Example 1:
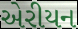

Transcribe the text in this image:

એરીયન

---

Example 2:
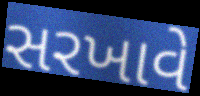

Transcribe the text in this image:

સરખાવે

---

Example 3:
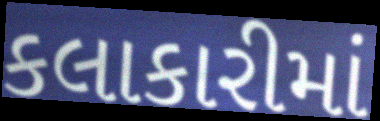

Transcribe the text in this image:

કલાકારીમાં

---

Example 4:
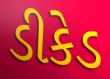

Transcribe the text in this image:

ડીકેડ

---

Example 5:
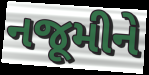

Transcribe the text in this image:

નજૂમીને